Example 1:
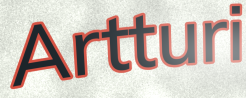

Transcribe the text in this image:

Artturi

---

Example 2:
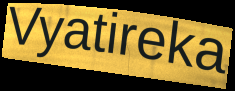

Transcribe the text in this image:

Vyatireka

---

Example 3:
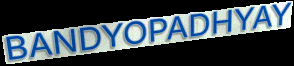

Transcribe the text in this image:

BANDYOPADHYAY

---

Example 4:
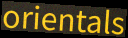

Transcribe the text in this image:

orientals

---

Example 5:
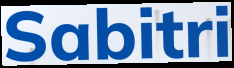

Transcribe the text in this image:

Sabitri